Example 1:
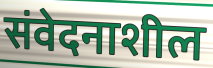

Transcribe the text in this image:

संवेदनाशील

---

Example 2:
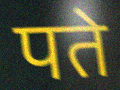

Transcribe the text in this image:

पते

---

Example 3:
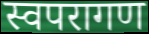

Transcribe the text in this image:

स्वपरागण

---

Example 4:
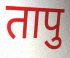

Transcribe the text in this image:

तापु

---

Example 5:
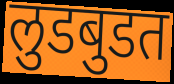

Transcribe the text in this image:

लुडबुडत